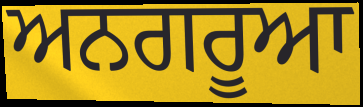
ਅਨਗਰੂਆ